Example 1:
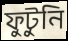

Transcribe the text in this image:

ফুটুনি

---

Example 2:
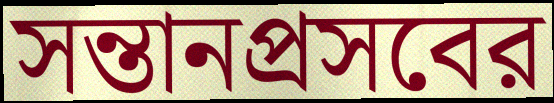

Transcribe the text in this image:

সন্তানপ্রসবের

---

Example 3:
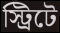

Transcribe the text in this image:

স্ট্রিটে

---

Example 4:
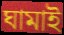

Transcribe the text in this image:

ঘামাই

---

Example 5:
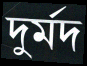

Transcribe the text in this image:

দুর্মদ